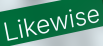
Likewise